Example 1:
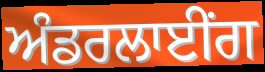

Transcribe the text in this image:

ਅੰਡਰਲਾਈੰਗ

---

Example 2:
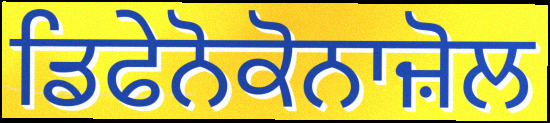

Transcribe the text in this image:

ਡਿਫੇਨੋਕੋਨਾਜ਼ੋਲ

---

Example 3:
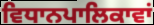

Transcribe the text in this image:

ਵਿਧਾਨਪਾਲਿਕਾਵਾਂ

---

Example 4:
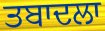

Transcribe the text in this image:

ਤਬਾਦਲਾ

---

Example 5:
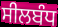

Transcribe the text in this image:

ਸੀਲਬੰਧ